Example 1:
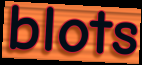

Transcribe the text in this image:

blots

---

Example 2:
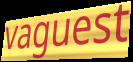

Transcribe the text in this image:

vaguest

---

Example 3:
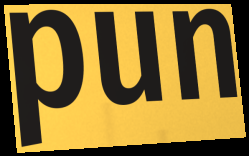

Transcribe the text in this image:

pun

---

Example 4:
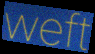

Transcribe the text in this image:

weft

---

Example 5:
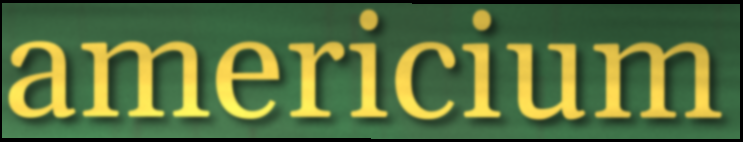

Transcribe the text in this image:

americium